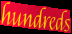
hundreds